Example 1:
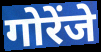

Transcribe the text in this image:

गोरेंजे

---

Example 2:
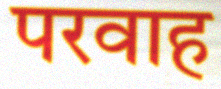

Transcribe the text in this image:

परवाह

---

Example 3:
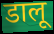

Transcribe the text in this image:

डालू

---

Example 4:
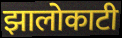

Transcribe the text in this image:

झालोकाटी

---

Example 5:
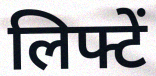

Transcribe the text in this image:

लिफ्टें